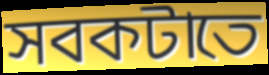
সবকটাতে